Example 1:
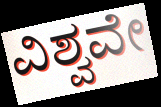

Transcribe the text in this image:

ವಿಶ್ವವೇ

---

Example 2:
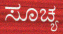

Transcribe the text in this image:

ಸೂಚ್ಯ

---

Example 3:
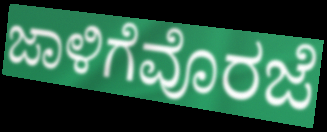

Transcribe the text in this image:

ಜಾಳಿಗೆವೊರಜೆ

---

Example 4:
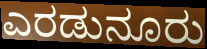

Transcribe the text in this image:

ಎರಡುನೂರು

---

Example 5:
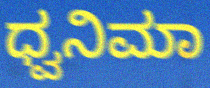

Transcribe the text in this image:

ಧ್ವನಿಮಾ